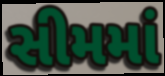
સીમમાં